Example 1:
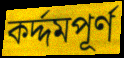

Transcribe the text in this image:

কর্দ্দমপূর্ণ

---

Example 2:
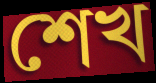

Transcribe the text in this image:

শেখ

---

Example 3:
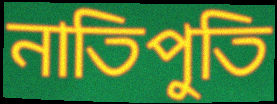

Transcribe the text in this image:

নাতিপুতি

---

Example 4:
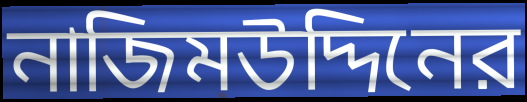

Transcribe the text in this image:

নাজিমউদ্দিনের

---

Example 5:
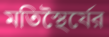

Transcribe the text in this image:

মতিস্থৈর্যের